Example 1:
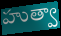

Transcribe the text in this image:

హుత్వా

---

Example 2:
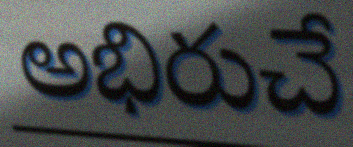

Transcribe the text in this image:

అభిరుచే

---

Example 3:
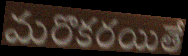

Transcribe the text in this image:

మరొకరయితే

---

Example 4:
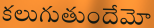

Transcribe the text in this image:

కలుగుతుందేమో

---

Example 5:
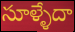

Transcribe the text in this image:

సూళ్ళేదా